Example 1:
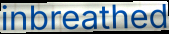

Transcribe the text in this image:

inbreathed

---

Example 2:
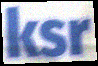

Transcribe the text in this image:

ksr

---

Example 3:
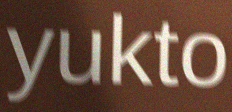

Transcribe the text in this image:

yukto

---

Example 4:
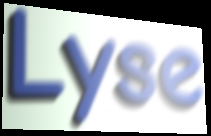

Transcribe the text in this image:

Lyse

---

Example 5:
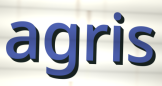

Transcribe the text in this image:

agris